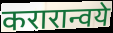
करारान्वये